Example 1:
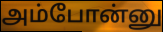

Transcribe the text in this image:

அம்போன்னு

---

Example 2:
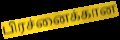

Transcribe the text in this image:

பிரச்னைக்கான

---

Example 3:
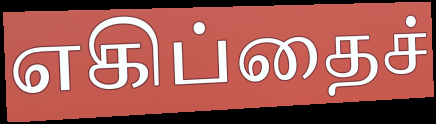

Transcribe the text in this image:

எகிப்தைச்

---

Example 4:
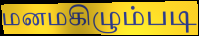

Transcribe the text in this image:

மனமகிழும்படி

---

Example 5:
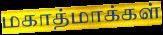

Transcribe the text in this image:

மகாத்மாக்கள்